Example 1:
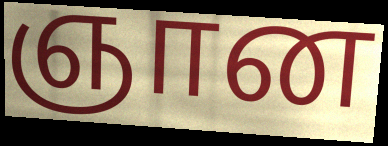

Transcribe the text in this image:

ஞான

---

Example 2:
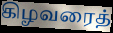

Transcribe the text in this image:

கிழவரைத்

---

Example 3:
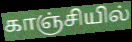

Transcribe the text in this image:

காஞ்சியில்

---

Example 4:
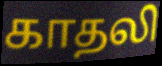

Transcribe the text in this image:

காதலி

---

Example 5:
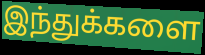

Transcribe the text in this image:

இந்துக்களை